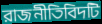
রাজনীতিবিদটি